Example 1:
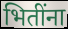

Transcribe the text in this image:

भितींना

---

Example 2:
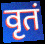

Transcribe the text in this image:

वृतं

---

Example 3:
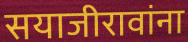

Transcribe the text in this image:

सयाजीरावांना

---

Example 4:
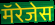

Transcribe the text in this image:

मॅरेजेस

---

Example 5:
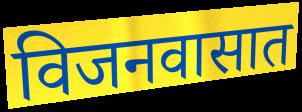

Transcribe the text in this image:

विजनवासात